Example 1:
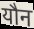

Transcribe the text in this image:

यौन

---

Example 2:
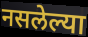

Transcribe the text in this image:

नसलेल्या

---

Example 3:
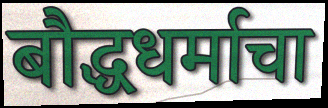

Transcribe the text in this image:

बौद्धधर्माचा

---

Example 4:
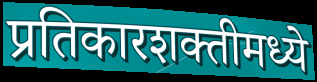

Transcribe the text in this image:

प्रतिकारशक्तीमध्ये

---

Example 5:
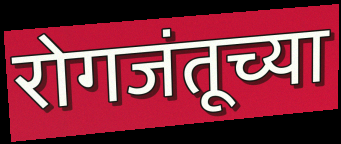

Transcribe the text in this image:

रोगजंतूच्या